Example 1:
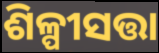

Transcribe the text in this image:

ଶିଳ୍ପୀସତ୍ତା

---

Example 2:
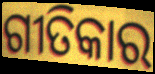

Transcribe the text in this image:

ଗୀତିକାର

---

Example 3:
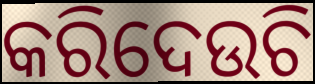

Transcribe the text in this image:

କରିଦେଉଚି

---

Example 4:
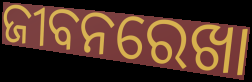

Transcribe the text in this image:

ଜୀବନରେଖା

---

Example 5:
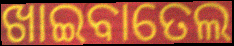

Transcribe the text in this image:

ଖାଇବାତେଲ